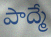
పాద్మే